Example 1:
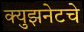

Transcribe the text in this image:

क्युझनेटचे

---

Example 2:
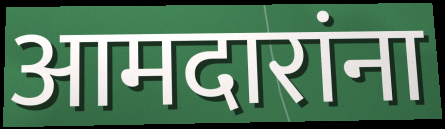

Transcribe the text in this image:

आमदारांना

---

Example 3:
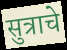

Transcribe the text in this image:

सुत्राचे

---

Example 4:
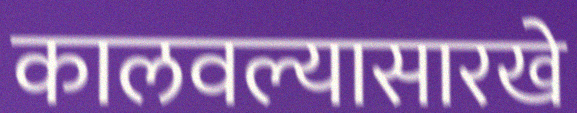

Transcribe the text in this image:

कालवल्यासारखे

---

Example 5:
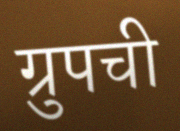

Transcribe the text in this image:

ग्रुपची